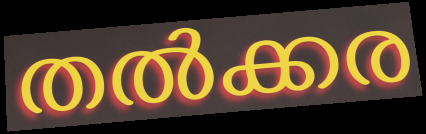
തൽക്കര